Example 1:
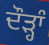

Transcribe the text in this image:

ਦੌੜ੍ਹਾੰ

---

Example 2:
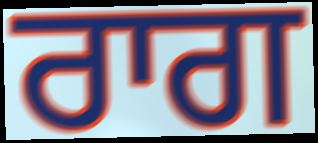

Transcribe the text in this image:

ਰਾਗ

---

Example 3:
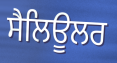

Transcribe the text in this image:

ਸੈਲਿਊਲਰ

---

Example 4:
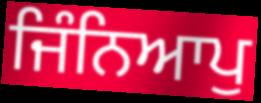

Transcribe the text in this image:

ਜਿੰਨਿਆਪੁ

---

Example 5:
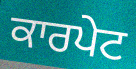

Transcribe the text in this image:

ਕਾਰਪੇਟ